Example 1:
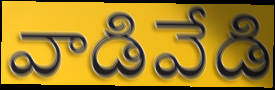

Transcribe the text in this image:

వాడివేడి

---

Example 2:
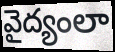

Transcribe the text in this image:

వైద్యంలా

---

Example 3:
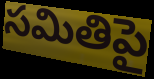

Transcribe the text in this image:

సమితిపై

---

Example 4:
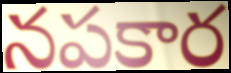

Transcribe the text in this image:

నపకార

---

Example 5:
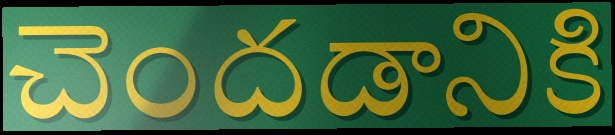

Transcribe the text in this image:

చెందడానికి